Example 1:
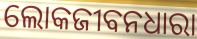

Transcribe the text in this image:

ଲୋକଜୀବନଧାରା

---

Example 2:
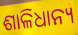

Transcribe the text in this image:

ଶାଳିଧାନ୍ୟ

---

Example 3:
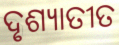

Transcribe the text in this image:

ଦୃଶ୍ୟାତୀତ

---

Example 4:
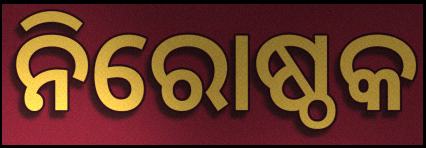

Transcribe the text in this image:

ନିରୋଷ୍ଠକ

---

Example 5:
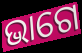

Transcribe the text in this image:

ଭାଗେ